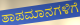
ತಾಪಮಾನಗಳಿಗೆ